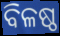
ବିଳଷ୍ଠ